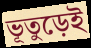
ভূতুড়েই